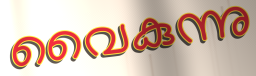
വൈകുന്നു